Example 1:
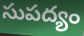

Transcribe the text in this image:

సుపద్యం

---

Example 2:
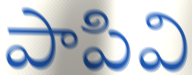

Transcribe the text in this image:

పాపివి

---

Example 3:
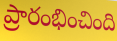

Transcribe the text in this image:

ప్రారంభించింది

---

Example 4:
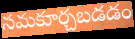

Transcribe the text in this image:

సమకూర్చబడడం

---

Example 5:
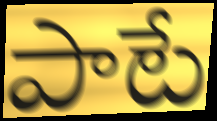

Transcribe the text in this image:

పాటే